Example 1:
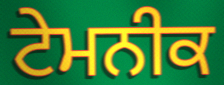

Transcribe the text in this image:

ਟੇਮਨੀਕ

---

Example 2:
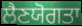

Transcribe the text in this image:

ਲੈਣਯੋਗਤਾ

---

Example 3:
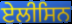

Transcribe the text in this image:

ਏਲੀਸਿਨ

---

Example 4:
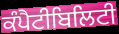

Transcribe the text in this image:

ਕੰਪੈਟੀਬਿਲਿਟੀ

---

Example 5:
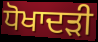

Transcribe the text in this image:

ਧੋਖਾਦੜੀ